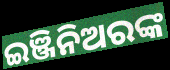
ଇଞ୍ଜିନିଅରଙ୍କ